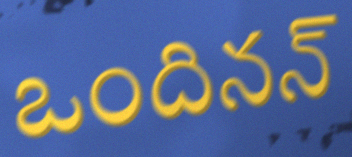
ఒందినన్